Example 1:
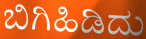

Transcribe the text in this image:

ಬಿಗಿಹಿಡಿದು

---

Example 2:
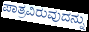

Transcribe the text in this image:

ಪಾತ್ರವಿರುವುದನ್ನು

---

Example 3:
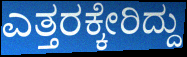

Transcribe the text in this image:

ಎತ್ತರಕ್ಕೇರಿದ್ದು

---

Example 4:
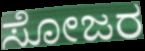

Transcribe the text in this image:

ಸೋಜರ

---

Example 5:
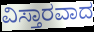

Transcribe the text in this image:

ವಿಸ್ತಾರವಾದ